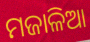
ମଜାଳିଆ